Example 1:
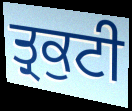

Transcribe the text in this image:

ਤ੍ਰਕੁਟੀ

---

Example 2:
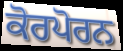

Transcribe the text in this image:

ਕੋਰਪੋਰਨ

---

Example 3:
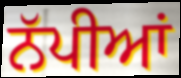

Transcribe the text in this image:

ਨੱਪੀਆਂ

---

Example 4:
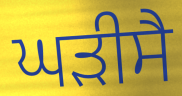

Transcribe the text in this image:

ਘੜੀਸੈ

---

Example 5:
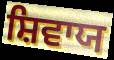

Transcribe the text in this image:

ਸ਼ਿਵਾਯ